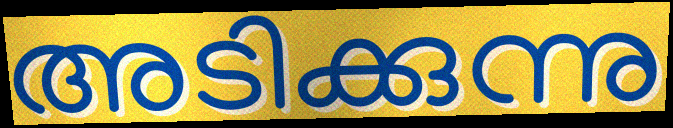
അടിക്കുന്നു